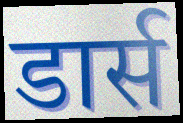
डार्स